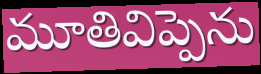
మూతివిప్పెను